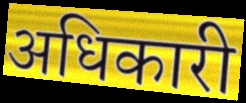
अधिकारी